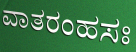
ವಾತರಂಹಸಃ